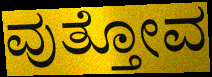
ವುತ್ತೋವ